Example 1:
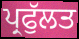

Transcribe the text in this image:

ਪ੍ਰਫੁੱਲਤ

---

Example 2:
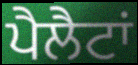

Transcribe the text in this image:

ਪੈਲੈਟਾਂ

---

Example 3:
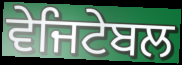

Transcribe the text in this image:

ਵੇਜਿਟੇਬਲ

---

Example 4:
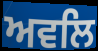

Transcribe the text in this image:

ਅਵਲਿ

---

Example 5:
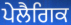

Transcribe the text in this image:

ਪੇਲੈਗਿਕ